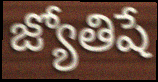
జ్యోతిషే